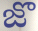
జొ